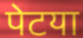
पेटया